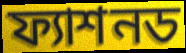
ফ্যাশনড